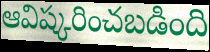
ఆవిష్కరించబడింది